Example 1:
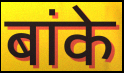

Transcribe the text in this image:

बांके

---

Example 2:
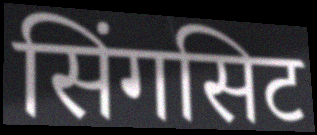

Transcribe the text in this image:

सिंगसिट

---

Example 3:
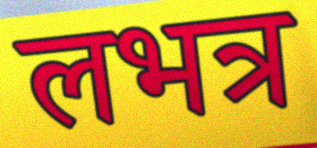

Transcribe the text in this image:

लभत्र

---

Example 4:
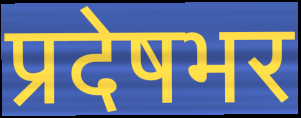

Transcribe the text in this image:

प्रदेषभर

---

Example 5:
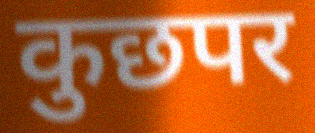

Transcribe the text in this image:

कुछपर